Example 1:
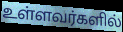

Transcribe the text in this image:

உள்ளவர்களில்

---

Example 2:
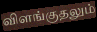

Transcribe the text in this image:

விளங்குதலும்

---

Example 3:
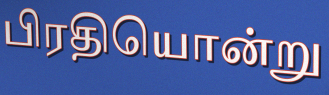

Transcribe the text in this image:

பிரதியொன்று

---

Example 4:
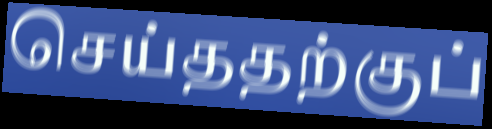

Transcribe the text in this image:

செய்ததற்குப்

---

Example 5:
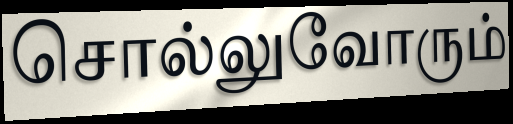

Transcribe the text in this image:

சொல்லுவோரும்